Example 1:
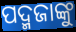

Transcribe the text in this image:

ପଦ୍ମଜାଙ୍କୁ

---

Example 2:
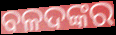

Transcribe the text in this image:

ବଳଦଙ୍କର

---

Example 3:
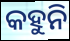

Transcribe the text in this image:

କହୁନି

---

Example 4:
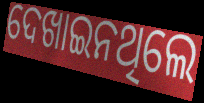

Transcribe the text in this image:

ଦେଖାଇନଥିଲେ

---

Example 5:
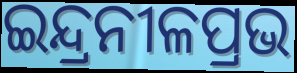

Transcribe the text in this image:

ଇନ୍ଦ୍ରନୀଳପ୍ରଭ